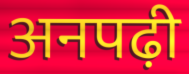
अनपढ़ी